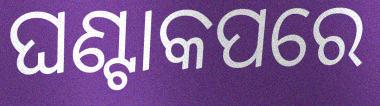
ଘଣ୍ଟାକପରେ